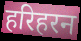
हरिहरन